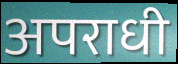
अपराधी